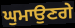
ਘੁਮਾਉਣਗੇ